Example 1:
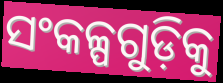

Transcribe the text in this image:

ସଂକଳ୍ପଗୁଡ଼ିକୁ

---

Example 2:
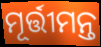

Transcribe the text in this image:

ମୂର୍ତ୍ତୀମନ୍ତ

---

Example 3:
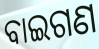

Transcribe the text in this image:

ବାଇଗଣ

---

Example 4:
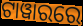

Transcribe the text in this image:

ଟାୱାରରେ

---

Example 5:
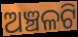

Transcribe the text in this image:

ଅଞ୍ଚଳଟି